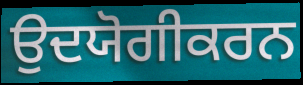
ਉਦਯੋਗੀਕਰਨ